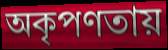
অকৃপণতায়